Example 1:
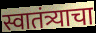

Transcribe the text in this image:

स्वातंत्र्याचा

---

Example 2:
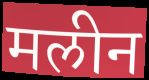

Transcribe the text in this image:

मलीन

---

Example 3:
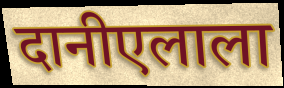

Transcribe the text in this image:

दानीएलाला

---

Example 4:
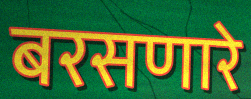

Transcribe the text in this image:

बरसणारे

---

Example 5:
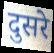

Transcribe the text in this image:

दुसरे